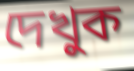
দেখুক